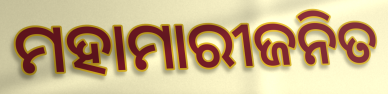
ମହାମାରୀଜନିତ